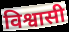
विश्वासी